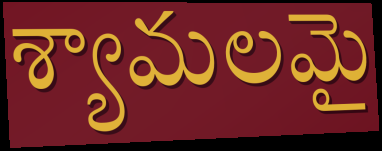
శ్యామలమై